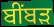
ਬੀੰਬੜ